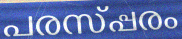
പരസ്പ്പരം